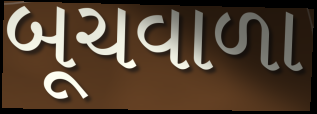
બૂચવાળા